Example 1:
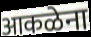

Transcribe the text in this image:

आकळेना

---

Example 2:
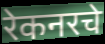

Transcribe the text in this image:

रेकनरचे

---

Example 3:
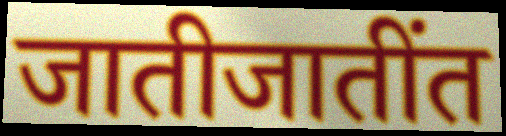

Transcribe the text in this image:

जातीजातींत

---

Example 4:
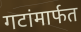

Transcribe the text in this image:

गटांमार्फत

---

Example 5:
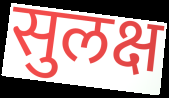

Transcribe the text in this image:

सुलक्ष